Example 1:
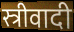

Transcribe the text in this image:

स्त्रीवादी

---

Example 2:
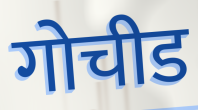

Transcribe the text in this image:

गोचीड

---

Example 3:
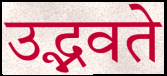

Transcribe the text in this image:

उद्भवते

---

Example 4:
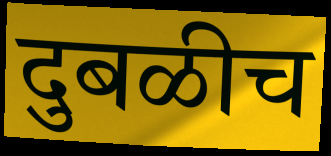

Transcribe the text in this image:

दुबळीच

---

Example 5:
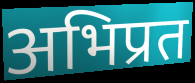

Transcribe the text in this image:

अभिप्रत